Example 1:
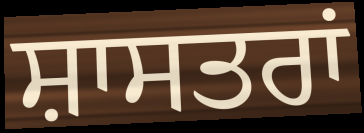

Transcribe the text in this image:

ਸ਼ਾਸਤਰਾਂ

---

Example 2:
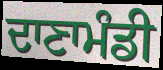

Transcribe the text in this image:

ਦਾਣਾਮੰਡੀ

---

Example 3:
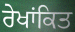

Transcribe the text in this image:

ਰੇਖਾਂਕਿਤ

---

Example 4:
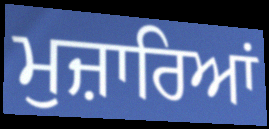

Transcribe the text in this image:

ਮੁਜ਼ਾਰਿਆਂ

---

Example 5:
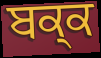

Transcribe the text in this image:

ਬਕ੍ਕ